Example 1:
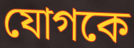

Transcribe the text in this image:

যোগকে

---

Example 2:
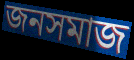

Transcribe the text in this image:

জনসমাজ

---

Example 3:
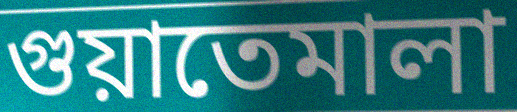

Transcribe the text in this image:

গুয়াতেমালা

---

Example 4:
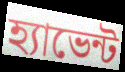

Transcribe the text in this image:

হ্যাভেন্ট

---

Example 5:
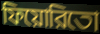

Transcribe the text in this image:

ফিয়োরিতো